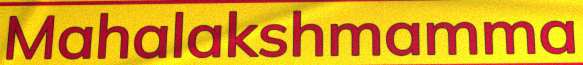
Mahalakshmamma